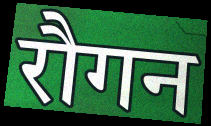
रौगन